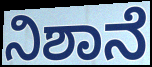
ನಿಶಾನೆ